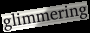
glimmering